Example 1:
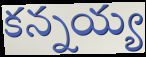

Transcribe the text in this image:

కన్నయ్య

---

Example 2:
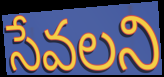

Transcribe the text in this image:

సేవలని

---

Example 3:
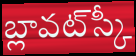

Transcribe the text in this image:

బ్లావట్‌స్కీ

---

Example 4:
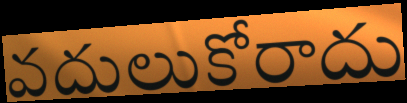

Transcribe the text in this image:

వదులుకోరాదు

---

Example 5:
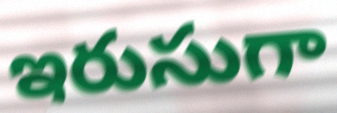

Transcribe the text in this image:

ఇరుసుగా